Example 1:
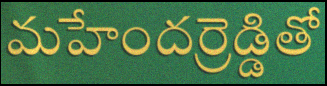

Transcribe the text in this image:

మహేందర్రెడ్డితో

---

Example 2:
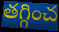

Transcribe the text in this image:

తగ్గించ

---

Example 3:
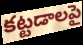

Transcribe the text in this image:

కట్టడాలపై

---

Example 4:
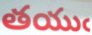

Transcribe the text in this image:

తయుఁ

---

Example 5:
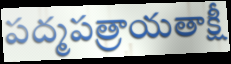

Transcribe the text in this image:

పద్మపత్రాయతాక్షీ